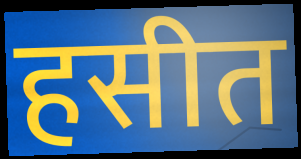
हसीत